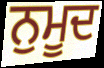
ਨੁਮੂਦ